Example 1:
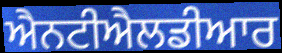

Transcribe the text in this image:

ਐਨਟੀਐਲਡੀਆਰ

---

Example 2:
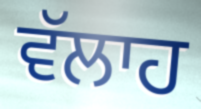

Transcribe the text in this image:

ਵੱਲਾਹ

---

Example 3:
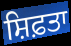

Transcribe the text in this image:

ਸ਼ਿਫ਼ਤਾ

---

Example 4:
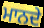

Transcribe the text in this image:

ਮਾਨਦੇ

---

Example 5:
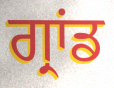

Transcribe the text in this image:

ਗ੍ਰਾਂਡ